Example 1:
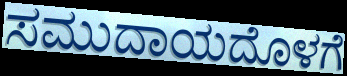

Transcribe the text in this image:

ಸಮುದಾಯದೊಳಗೆ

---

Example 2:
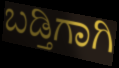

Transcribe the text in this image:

ಬಡ್ತಿಗಾಗಿ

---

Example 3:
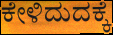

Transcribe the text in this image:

ಕೇಳಿದುದಕ್ಕೆ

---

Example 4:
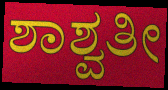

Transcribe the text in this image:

ಶಾಶ್ವತೀ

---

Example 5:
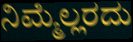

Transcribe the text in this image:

ನಿಮ್ಮೆಲ್ಲರದು